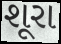
શૂરા